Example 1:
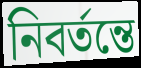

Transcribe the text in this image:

নিবর্তন্তে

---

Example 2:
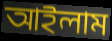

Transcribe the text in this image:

আইলাম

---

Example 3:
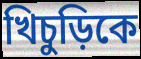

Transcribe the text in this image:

খিচুড়িকে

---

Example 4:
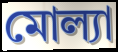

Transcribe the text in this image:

মোল্যা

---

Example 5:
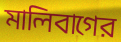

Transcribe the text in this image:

মালিবাগের